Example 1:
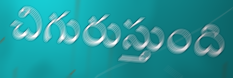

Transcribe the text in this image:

చిగురుస్తుంది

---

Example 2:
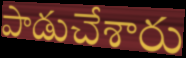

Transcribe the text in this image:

పాడుచేశారు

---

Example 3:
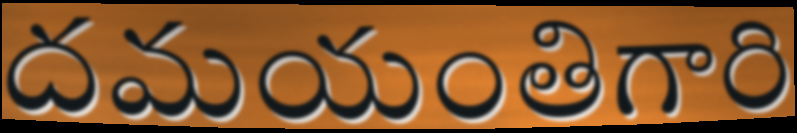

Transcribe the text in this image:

దమయంతిగారి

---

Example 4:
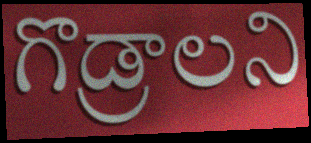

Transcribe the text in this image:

గొడ్రాలని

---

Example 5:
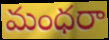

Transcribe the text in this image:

మంధరా